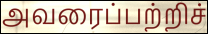
அவரைப்பற்றிச்